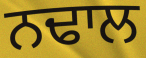
ਨਢਾਲ